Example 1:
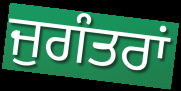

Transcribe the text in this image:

ਜੁਗੰਤਰਾਂ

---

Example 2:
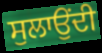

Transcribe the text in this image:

ਸੁਲਾਉਂਦੀ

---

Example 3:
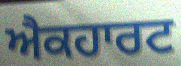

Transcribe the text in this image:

ਐਕਹਾਰਟ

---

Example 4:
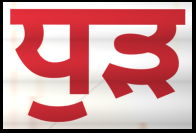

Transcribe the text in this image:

ਧੁੜ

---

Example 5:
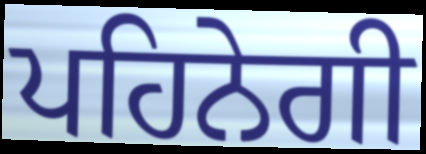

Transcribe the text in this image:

ਪਹਿਨੇਗੀ